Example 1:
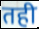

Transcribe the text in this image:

तही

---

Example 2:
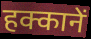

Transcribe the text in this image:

हक्कानें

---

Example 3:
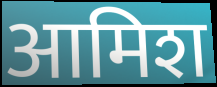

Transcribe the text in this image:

आमिश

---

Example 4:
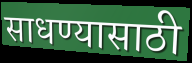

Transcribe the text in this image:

साधण्यासाठी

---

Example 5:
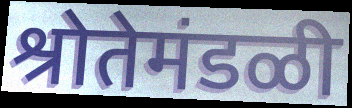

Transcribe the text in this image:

श्रोतेमंडळी